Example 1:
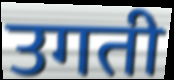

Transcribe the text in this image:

उगती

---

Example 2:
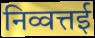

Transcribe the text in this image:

निव्वत्तई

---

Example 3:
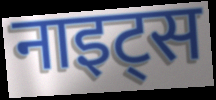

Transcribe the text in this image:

नाइट्स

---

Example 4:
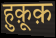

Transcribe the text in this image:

ह़ुक़ूक़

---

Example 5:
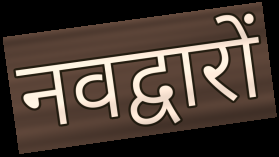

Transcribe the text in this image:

नवद्वारों